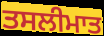
ਤਸਲੀਮਾਤ